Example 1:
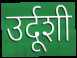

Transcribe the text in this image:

उर्दूशी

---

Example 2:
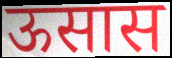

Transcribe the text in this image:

ऊसास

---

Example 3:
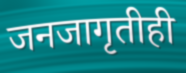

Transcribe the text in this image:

जनजागृतीही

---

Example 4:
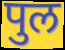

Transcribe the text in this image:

पुल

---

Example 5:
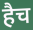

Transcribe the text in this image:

हैच